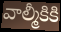
వాల్మీకికి